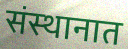
संस्थानात